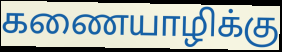
கணையாழிக்கு